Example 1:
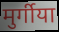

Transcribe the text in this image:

मुर्गीया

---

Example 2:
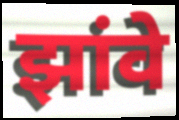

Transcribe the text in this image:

झांवे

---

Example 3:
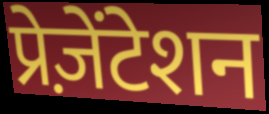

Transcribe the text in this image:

प्रेज़ेंटेशन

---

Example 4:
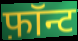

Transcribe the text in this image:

फ़ॉन्ट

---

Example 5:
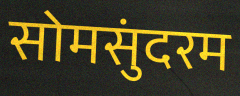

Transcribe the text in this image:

सोमसुंदरम